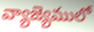
వ్యాజ్యెములో